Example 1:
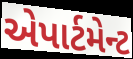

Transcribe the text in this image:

એપાર્ટમેન્ટ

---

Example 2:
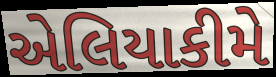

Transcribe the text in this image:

એલિયાકીમે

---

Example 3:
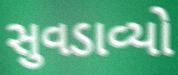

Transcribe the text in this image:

સુવડાવ્યો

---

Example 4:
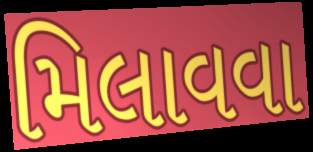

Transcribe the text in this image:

મિલાવવા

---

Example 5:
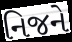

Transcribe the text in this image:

નિજને